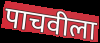
पाचवीला